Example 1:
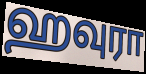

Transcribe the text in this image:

ஹவுரா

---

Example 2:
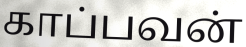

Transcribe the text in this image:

காப்பவன்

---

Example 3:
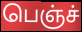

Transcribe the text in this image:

பெஞ்ச்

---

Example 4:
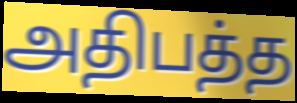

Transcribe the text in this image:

அதிபத்த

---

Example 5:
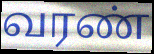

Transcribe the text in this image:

வரண்